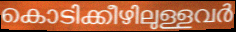
കൊടിക്കീഴിലുള്ളവർ